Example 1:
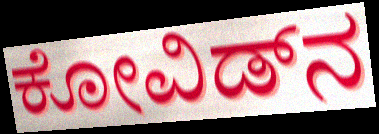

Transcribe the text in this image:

ಕೋವಿಡ್‌ನ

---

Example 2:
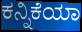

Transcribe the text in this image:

ಕನ್ನಿಕೆಯಾ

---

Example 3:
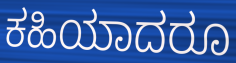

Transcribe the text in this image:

ಕಹಿಯಾದರೂ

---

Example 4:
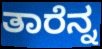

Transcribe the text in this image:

ತಾರೆನ್ನ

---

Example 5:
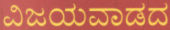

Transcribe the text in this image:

ವಿಜಯವಾಡದ